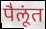
पैलूंत